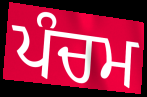
ਪੰਚਮ